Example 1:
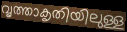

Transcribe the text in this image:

വൃത്താകൃതിയിലുള്ള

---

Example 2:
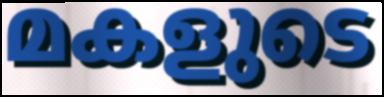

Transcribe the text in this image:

മകളുടെ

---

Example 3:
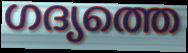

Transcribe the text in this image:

ഗദ്യത്തെ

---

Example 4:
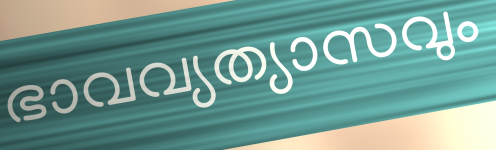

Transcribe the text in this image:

ഭാവവ്യത്യാസവും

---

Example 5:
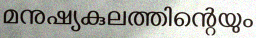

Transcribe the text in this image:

മനുഷ്യകുലത്തിന്റെയും